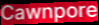
Cawnpore